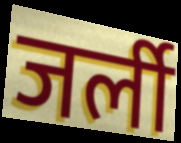
जर्ली